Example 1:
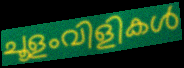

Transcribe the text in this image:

ചൂളംവിളികൾ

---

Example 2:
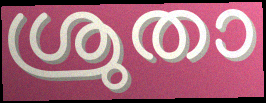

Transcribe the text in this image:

ശ്രുതാ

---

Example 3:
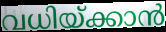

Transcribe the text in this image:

വധിയ്ക്കാൻ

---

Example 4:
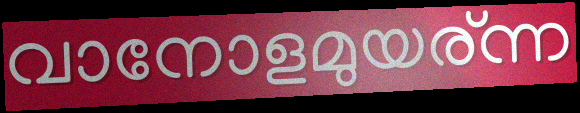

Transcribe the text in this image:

വാനോളമുയര്ന്ന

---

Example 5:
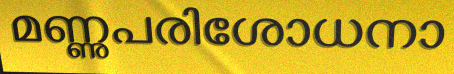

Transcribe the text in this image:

മണ്ണുപരിശോധനാ